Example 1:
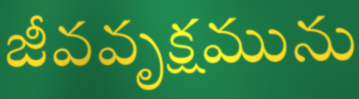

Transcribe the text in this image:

జీవవృక్షమును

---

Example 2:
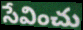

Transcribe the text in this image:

సేవించు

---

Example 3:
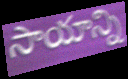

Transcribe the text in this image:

సాయాన్ని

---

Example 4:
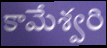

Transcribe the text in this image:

కామేశ్వరి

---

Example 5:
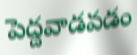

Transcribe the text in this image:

పెద్దవాడవడం